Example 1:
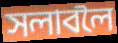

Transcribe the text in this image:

সলাবলৈ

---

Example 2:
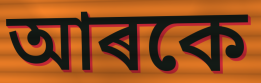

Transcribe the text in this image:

আৰকে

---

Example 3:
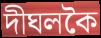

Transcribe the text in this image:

দীঘলকৈ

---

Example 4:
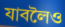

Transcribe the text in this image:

যাবলৈও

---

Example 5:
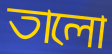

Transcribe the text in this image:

তালো